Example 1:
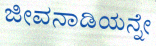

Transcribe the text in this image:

ಜೀವನಾಡಿಯನ್ನೇ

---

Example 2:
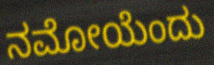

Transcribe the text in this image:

ನಮೋಯೆಂದು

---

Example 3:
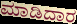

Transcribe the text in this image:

ಮಾಡಿದಾರ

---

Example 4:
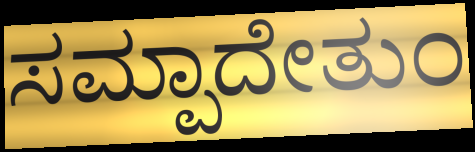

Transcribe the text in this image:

ಸಮ್ಪಾದೇತುಂ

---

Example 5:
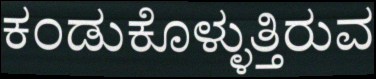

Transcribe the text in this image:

ಕಂಡುಕೊಳ್ಳುತ್ತಿರುವ